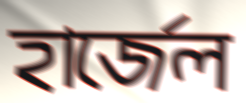
হার্জেল